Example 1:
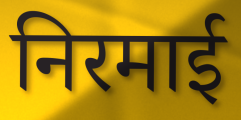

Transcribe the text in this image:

निरमाई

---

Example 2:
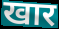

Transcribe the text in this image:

खार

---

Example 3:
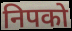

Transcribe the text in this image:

निपको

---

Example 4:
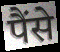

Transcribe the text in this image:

पैंसे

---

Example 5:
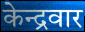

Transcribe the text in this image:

केन्द्रवार